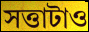
সত্তাটাও